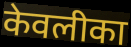
केवलीका